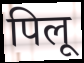
पिलू